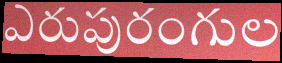
ఎరుపురంగుల